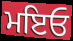
ਮਇਓ